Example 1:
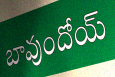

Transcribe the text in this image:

బావుందోయ్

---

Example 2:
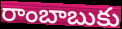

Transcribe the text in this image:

రాంబాబుకు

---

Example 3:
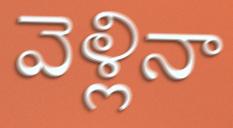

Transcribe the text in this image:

వెళ్లినా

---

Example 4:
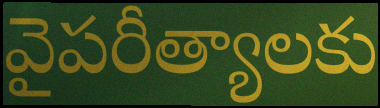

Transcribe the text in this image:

వైపరీత్యాలకు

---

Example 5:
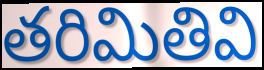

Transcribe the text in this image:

తరిమితివి